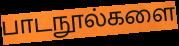
பாடநூல்களை